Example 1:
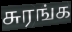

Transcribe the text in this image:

சுரங்க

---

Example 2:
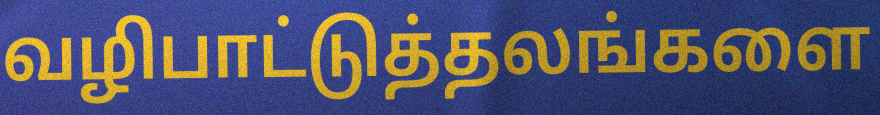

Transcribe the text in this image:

வழிபாட்டுத்தலங்களை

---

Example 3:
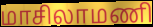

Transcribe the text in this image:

மாசிலாமணி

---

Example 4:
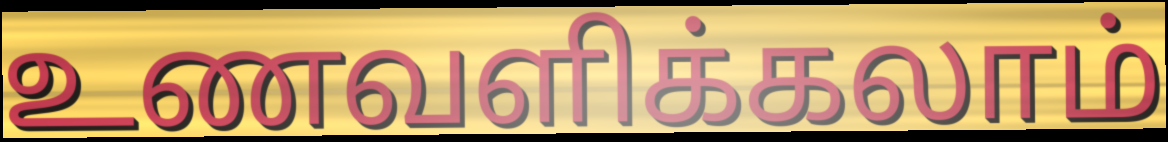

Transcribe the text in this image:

உணவளிக்கலாம்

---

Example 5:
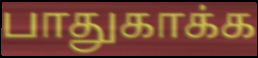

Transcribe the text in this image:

பாதுகாக்க